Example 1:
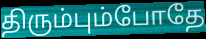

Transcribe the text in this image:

திரும்பும்போதே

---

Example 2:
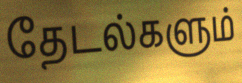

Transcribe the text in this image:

தேடல்களும்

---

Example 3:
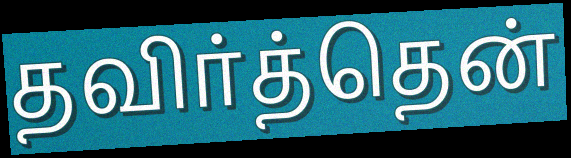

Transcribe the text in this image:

தவிர்த்தென்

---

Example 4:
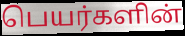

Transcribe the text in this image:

பெயர்களின்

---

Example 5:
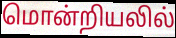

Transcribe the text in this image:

மொன்றியலில்